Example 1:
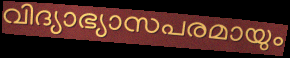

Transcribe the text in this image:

വിദ്യാഭ്യാസപരമായും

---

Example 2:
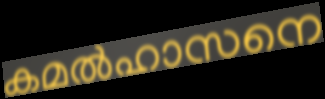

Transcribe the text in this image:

കമൽഹാസനെ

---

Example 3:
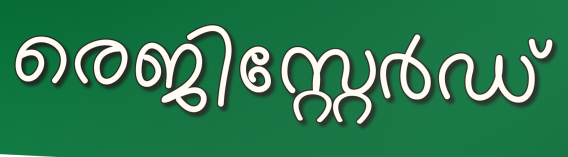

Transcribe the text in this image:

രെജിസ്റ്റേർഡ്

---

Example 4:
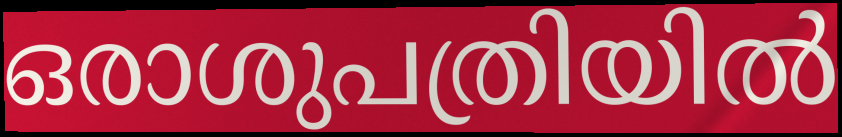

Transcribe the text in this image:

ഒരാശുപത്രിയിൽ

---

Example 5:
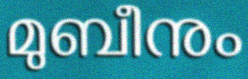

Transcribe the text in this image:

മുബീനും